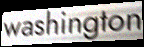
washington